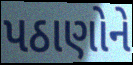
પઠાણોને